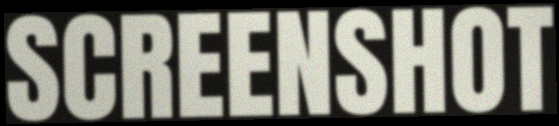
SCREENSHOT